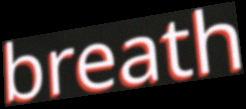
breath